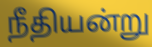
நீதியன்று